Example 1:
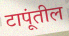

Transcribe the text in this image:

टापूंतील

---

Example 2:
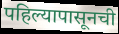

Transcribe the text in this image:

पहिल्यापासूनची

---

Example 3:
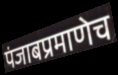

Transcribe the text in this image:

पंजाबप्रमाणेच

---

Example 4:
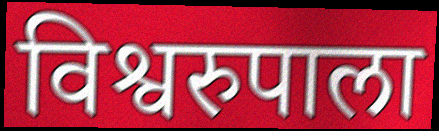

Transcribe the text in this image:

विश्वरुपाला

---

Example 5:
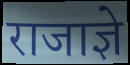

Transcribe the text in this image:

राजाज्ञे